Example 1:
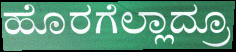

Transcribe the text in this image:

ಹೊರಗೆಲ್ಲಾದ್ರೂ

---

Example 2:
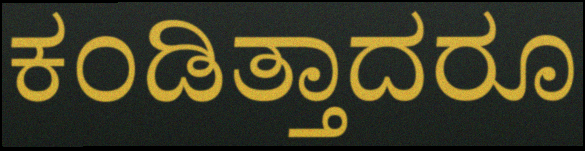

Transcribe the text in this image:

ಕಂಡಿತ್ತಾದರೂ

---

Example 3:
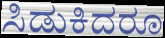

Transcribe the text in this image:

ಸಿಡುಕಿದರೂ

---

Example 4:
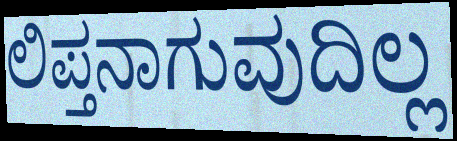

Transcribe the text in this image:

ಲಿಪ್ತನಾಗುವುದಿಲ್ಲ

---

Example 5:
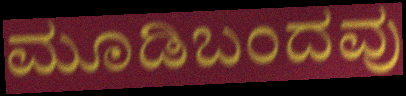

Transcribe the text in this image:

ಮೂಡಿಬಂದವು